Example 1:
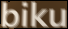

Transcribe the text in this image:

biku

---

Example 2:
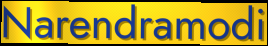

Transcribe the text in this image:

Narendramodi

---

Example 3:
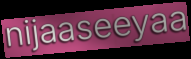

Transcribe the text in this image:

nijaaseeyaa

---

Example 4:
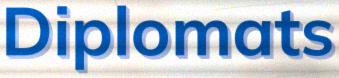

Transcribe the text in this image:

Diplomats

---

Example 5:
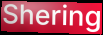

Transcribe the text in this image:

Shering